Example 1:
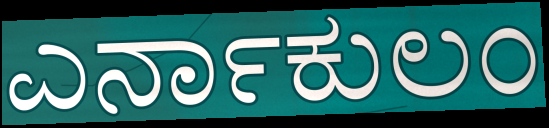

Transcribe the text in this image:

ಎರ್ನಾಕುಲಂ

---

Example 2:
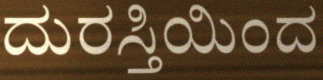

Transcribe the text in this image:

ದುರಸ್ತಿಯಿಂದ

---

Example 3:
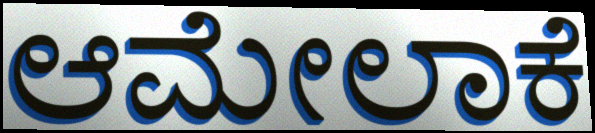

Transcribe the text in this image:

ಆಮೇಲಾಕೆ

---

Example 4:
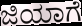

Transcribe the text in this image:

ಜಿಯಾಗೆ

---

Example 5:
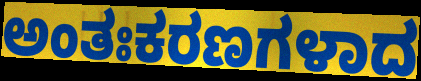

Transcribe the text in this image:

ಅಂತಃಕರಣಗಳಾದ